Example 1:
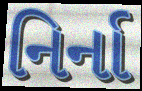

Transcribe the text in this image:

નિર્ના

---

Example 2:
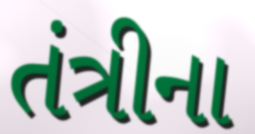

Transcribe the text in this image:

તંત્રીના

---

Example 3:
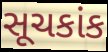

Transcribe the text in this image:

સૂચકાંક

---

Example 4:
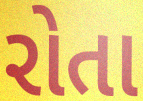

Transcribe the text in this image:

રોતા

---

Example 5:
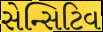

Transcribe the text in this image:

સેન્સિટિવ